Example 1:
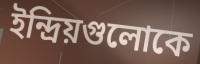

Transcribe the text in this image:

ইন্দ্রিয়গুলোকে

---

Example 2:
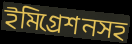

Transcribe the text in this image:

ইমিগ্রেশনসহ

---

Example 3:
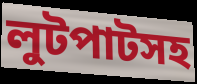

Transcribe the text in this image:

লুটপাটসহ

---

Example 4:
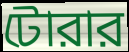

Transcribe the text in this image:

টোরার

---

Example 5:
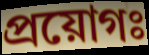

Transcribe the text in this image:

প্রয়োগঃ